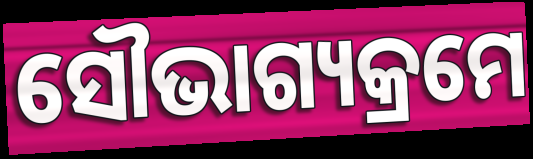
ସୌଭାଗ୍ୟକ୍ରମେ